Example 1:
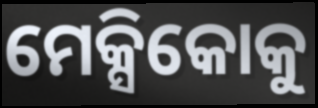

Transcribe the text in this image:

ମେକ୍ସିକୋକୁ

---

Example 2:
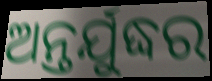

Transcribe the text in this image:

ଅନ୍ତର୍ଯୁଦ୍ଧର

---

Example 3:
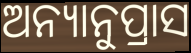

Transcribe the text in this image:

ଅନ୍ୟାନୁପ୍ରାସ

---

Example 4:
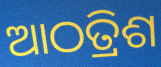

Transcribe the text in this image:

ଆଠତ୍ରିଶ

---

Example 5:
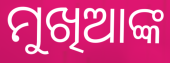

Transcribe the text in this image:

ମୁଖିଆଙ୍କ